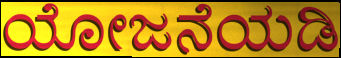
ಯೋಜನೆಯಡಿ